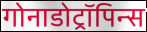
गोनाडोट्रॉपिन्स